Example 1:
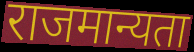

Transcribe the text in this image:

राजमान्यता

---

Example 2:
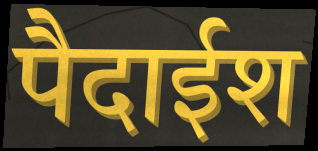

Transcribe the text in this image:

पैदाईश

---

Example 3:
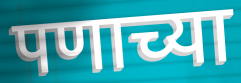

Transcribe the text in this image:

पणाच्या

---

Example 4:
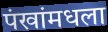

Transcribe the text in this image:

पंखांमधला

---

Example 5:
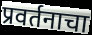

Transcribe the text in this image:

प्रवर्तनाचा